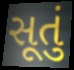
સૂતું